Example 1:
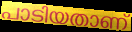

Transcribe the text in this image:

പാടിയതാണ്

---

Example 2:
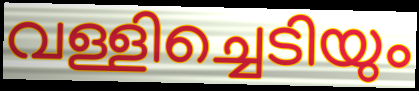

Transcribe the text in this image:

വള്ളിച്ചെടിയും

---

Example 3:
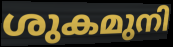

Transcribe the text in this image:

ശുകമുനി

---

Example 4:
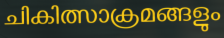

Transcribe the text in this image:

ചികിത്സാക്രമങ്ങളും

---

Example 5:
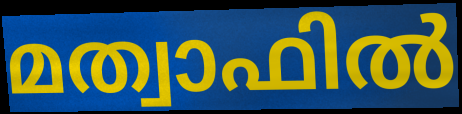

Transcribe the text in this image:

മത്വാഫിൽ